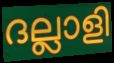
ദല്ലാളി